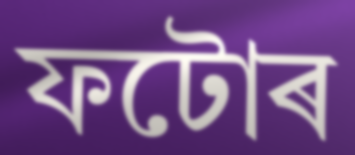
ফটোৰ